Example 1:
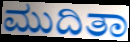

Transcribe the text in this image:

ಮುದಿತಾ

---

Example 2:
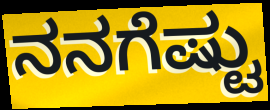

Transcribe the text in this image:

ನನಗೆಷ್ಟು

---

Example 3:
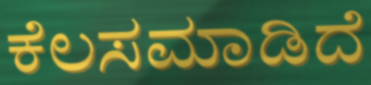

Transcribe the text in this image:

ಕೆಲಸಮಾಡಿದೆ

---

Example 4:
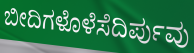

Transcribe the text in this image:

ಬೀದಿಗಳೊಳೆಸೆದಿರ್ಪುವು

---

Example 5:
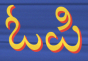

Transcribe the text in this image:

ಓಪಿ